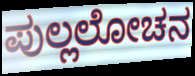
ಪುಲ್ಲಲೋಚನ